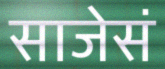
साजेसं